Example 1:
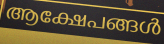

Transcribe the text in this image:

ആക്ഷേപങ്ങൾ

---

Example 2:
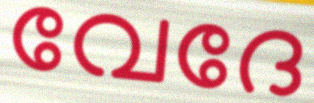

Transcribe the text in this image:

വേദേ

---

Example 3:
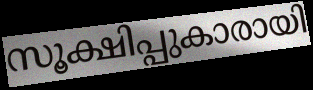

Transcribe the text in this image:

സൂക്ഷിപ്പുകാരായി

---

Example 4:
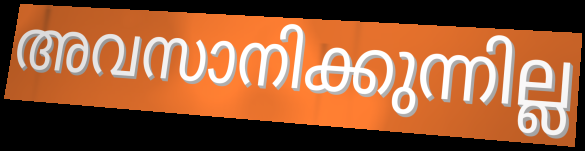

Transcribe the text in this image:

അവസാനിക്കുന്നില്ല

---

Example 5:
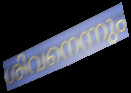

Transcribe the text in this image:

ശിവനെന്നും